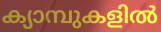
ക്യാമ്പുകളിൽ